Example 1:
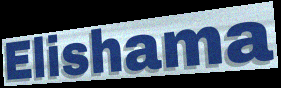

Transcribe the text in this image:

Elishama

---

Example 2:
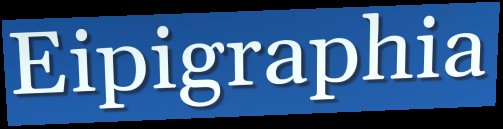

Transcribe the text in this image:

Eipigraphia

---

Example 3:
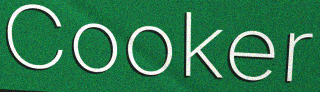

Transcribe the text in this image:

Cooker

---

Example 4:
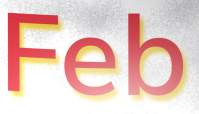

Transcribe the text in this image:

Feb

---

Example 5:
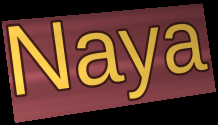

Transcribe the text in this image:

Naya